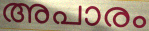
അപാരം